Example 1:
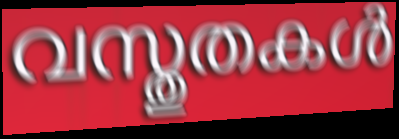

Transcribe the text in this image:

വസ്തുതകൾ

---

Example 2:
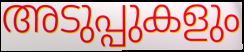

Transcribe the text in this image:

അടുപ്പുകളും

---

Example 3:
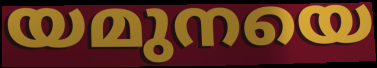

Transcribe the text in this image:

യമുനയെ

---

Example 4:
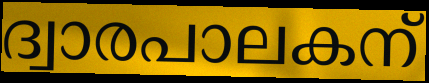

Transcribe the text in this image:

ദ്വാരപാലകന്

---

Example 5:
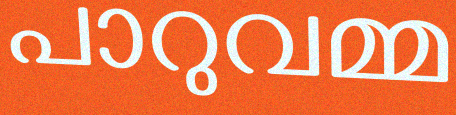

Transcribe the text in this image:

പാറുവമ്മ